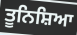
ਤੂਨਿਸ਼ਿਆ